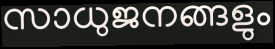
സാധുജനങ്ങളും